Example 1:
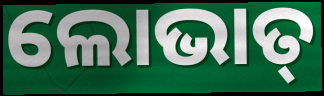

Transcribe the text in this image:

ଲୋଭାତ୍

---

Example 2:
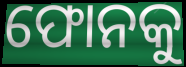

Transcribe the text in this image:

ଫୋନକୁ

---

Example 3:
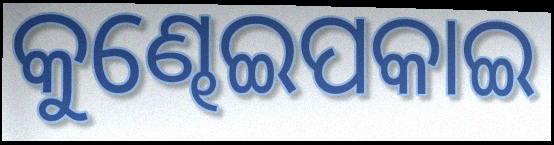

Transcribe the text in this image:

କୁଣ୍ଢେଇପକାଇ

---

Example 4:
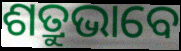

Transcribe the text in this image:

ଶତ୍ରୁଭାବେ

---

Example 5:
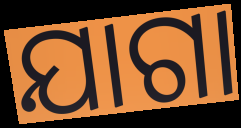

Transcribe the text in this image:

ଯାଗା